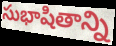
సుభాషితాన్ని